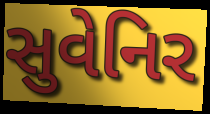
સુવેનિર